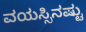
ವಯಸ್ಸಿನಷ್ಟು